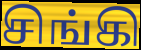
சிங்கி